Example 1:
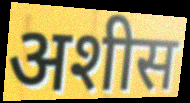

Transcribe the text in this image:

अशीस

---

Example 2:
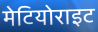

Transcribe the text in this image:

मेटियोराइट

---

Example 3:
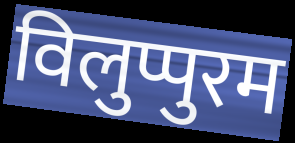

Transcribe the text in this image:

विलुप्पुरम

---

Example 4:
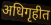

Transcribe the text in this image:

अधिगृहीत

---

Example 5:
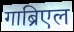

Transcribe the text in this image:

गाब्रिएल